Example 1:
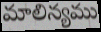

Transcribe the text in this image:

మాలిన్యము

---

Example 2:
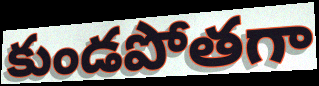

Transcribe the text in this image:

కుండపోతగా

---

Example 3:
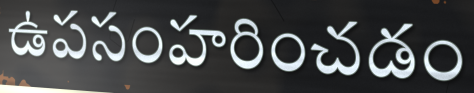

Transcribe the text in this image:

ఉపసంహరించడం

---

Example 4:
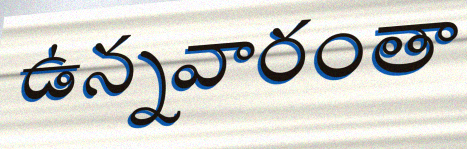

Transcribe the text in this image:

ఉన్నవారంతా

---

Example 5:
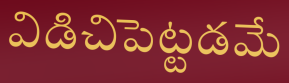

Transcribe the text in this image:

విడిచిపెట్టడమే